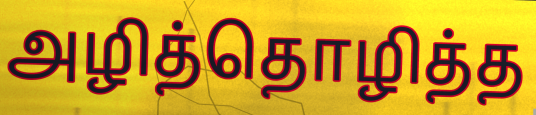
அழித்தொழித்த